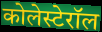
कोलेस्टेरॉल